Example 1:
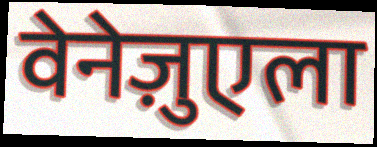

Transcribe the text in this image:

वेनेज़ुएला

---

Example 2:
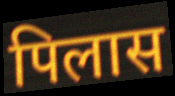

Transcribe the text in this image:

पिलास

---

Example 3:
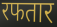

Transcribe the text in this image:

रफतार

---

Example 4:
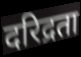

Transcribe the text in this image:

दरिद्रता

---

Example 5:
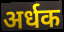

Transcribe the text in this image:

अर्धक